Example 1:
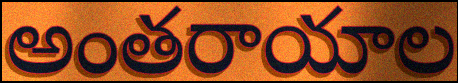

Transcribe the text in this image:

అంతరాయాల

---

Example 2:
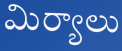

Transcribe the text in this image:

మిర్యాలు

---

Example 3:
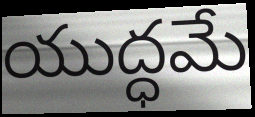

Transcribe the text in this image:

యుద్ధమే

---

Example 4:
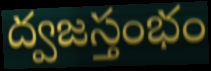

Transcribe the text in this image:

ద్వజస్తంభం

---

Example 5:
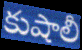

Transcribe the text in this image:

కుషాలీ